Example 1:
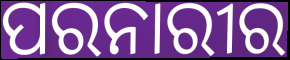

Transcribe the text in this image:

ପରନାରୀର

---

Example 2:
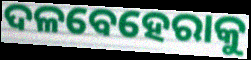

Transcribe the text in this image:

ଦଳବେହେରାକୁ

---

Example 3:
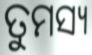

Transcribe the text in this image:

ତୁମସ୍ୟ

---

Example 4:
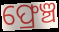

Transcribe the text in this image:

ଫ୍ରେଞ୍ଚ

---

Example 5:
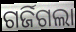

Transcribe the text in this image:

ଗର୍ଜିଗଲା